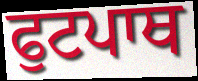
ਫੁਟਪਾਥ